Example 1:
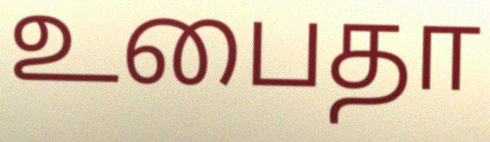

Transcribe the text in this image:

உபைதா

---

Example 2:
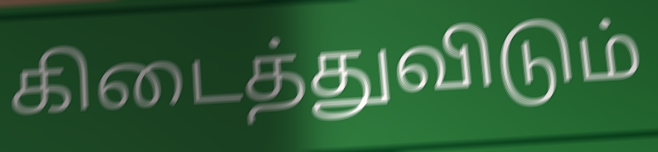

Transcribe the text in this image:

கிடைத்துவிடும்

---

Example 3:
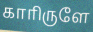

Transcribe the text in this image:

காரிருளே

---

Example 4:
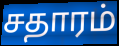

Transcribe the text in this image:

சதாரம்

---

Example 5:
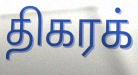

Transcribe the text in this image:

திகரக்